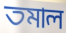
তমাল